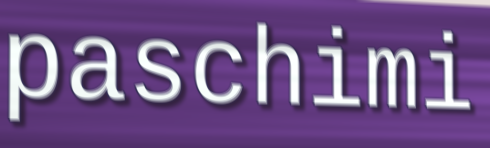
paschimi